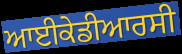
ਆਈਕੇਡੀਆਰਸੀ